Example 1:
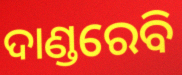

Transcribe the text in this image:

ଦାଣ୍ଡରେବି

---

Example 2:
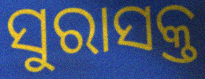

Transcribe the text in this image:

ସୁରାସକ୍ତ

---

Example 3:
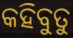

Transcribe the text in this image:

କହିବୁତୁ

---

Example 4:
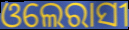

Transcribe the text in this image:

ଓଲେରାସୀ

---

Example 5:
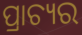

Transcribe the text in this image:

ପ୍ରାଚ୍ୟର